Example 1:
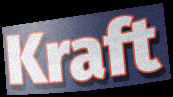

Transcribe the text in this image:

Kraft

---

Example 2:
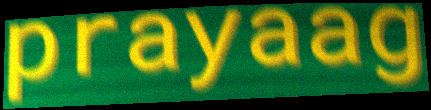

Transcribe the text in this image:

prayaag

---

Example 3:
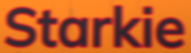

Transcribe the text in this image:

Starkie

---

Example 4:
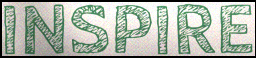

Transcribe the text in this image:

INSPIRE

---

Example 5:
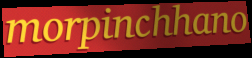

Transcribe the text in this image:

morpinchhano